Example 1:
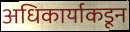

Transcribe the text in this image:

अधिकार्याकडून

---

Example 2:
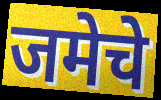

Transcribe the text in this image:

जमेचे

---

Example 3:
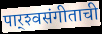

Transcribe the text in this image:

पार्श्वसंगीताची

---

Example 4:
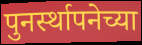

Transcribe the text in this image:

पुनर्स्थापनेच्या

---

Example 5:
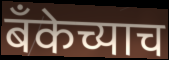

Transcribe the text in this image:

बँकेच्याच